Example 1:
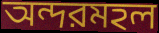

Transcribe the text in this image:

অন্দরমহল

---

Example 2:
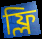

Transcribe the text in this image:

ফ্লি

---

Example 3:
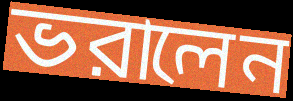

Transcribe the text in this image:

ভরালেন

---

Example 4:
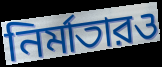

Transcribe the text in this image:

নির্মাতারও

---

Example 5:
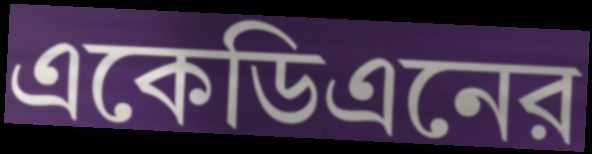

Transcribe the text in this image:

একেডিএনের